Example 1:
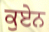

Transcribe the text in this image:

ਕੁਏਨ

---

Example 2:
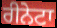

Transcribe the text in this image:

ਰੀਨੇਟਾ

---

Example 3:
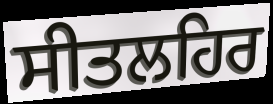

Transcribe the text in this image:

ਸੀਤਲਹਿਰ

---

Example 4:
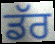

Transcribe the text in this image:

ਡੱਰ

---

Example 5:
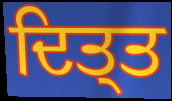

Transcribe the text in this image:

ਦਿਤ੍ਤ